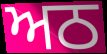
ਅਠ